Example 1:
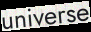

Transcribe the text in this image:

universe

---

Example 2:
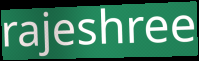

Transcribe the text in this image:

rajeshree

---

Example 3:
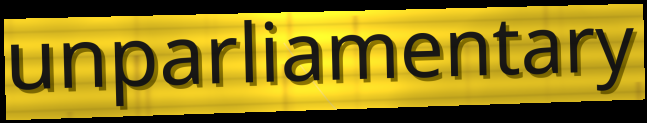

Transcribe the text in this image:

unparliamentary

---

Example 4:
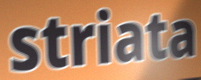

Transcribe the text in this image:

striata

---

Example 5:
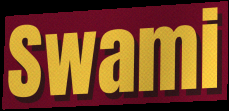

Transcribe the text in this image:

Swami